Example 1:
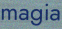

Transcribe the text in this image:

magia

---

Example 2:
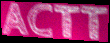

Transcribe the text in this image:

ACTT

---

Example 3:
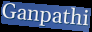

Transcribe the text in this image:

Ganpathi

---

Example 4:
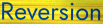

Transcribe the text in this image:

Reversion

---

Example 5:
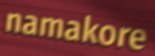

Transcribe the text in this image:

namakore